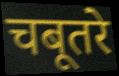
चबूतरे